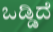
ಒಡ್ಡಿದೆ